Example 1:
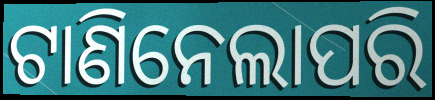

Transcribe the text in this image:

ଟାଣିନେଲାପରି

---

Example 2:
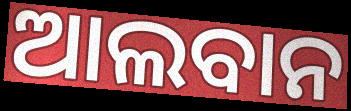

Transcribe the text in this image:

ଆଲବାନ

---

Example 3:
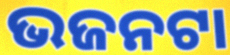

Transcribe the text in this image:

ଭଜନଟା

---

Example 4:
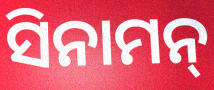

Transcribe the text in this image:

ସିନାମନ୍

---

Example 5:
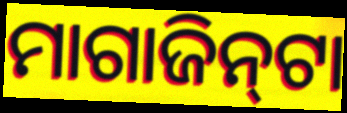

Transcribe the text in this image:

ମାଗାଜିନ୍‌ଟା